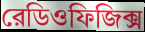
রেডিওফিজিক্স